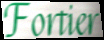
Fortier